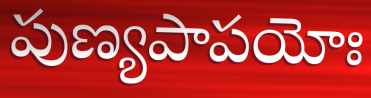
పుణ్యపాపయోః